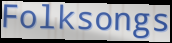
Folksongs